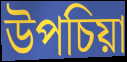
উপচিয়া